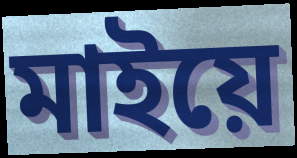
মাইয়ে